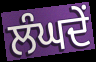
ਲੰਘਦੇਂ